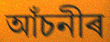
আঁচনীৰ